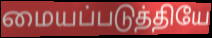
மையப்படுத்தியே